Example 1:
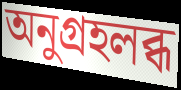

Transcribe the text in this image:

অনুগ্রহলব্ধ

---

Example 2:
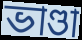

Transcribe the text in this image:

ভাণ্ডা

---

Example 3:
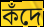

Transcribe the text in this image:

কঁদে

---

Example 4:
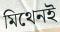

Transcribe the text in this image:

মিথেনই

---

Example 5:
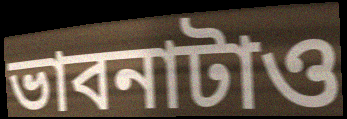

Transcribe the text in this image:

ভাবনাটাও